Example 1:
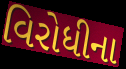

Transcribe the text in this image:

વિરોધીના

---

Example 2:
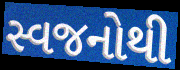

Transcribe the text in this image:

સ્વજનોથી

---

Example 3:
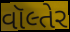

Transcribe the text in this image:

વૉલ્તેર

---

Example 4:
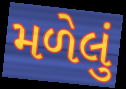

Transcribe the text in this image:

મળેલું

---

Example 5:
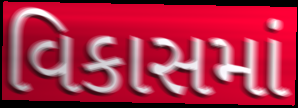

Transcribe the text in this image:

વિકાસમાં